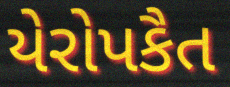
યેરોપકૈત